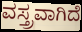
ವಸ್ತ್ರವಾಗಿದೆ